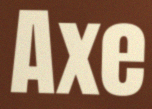
Axe